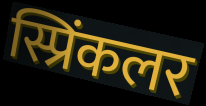
स्प्रिंकलर